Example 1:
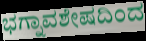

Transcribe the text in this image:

ಭಗ್ನಾವಶೇಷದಿಂದ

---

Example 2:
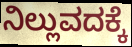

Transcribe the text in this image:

ನಿಲ್ಲುವದಕ್ಕೆ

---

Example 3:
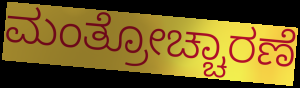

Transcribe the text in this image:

ಮಂತ್ರೋಚ್ಚಾರಣೆ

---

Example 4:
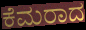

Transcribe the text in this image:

ಕೆಮರಾದ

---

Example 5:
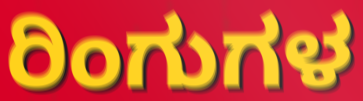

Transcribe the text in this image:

ರಿಂಗುಗಳ